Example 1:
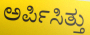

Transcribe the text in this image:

ಅರ್ಪಿಸಿತ್ತು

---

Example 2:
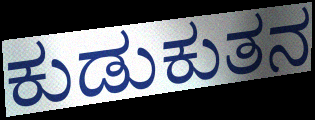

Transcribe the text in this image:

ಕುಡುಕುತನ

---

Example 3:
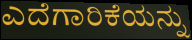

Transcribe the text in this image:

ಎದೆಗಾರಿಕೆಯನ್ನು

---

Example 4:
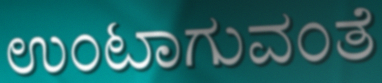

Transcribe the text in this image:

ಉಂಟಾಗುವಂತೆ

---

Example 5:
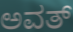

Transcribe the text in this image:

ಅವತ್